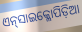
ଏନ୍‌ସାଇକ୍ଳୋପିଡ଼ିଆ